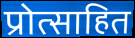
प्रोत्‍साहित